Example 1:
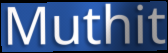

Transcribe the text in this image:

Muthit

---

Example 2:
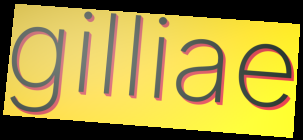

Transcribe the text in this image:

gilliae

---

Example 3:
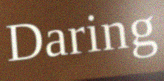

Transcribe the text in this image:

Daring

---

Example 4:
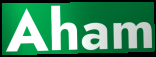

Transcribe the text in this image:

Aham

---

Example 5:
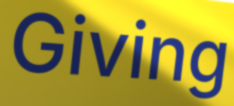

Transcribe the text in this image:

Giving